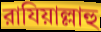
রাযিয়াল্লাহু